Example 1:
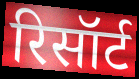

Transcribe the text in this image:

रिसॉर्ट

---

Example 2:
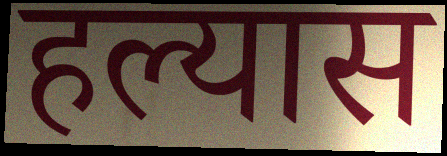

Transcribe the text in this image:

हल्यास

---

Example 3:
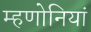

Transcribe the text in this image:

म्हणोनियां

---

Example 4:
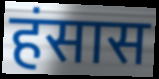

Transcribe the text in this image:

हंसास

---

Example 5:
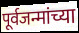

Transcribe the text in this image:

पूर्वजन्मांच्या